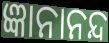
ଜ୍ଞାନାନନ୍ଦ